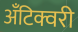
अँटिक्वरी